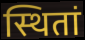
स्थितां